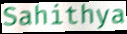
Sahithya